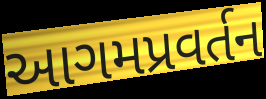
આગમપ્રવર્તન